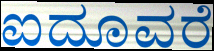
ಐದೂವರೆ